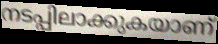
നടപ്പിലാക്കുകയാണ്